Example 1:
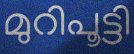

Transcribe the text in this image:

മുറിപൂട്ടി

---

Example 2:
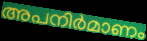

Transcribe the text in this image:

അപനിർമാണം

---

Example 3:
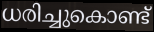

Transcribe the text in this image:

ധരിച്ചുകൊണ്ട്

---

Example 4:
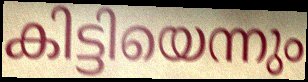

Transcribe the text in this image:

കിട്ടിയെന്നും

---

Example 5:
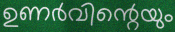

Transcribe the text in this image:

ഉണർവിന്റെയും